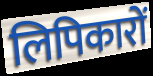
लिपिकारों